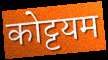
कोट्टयम